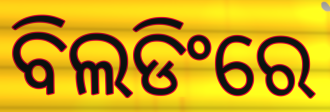
ବିଲଡିଂରେ